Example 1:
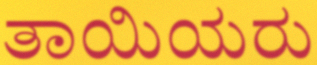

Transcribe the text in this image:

ತಾಯಿಯರು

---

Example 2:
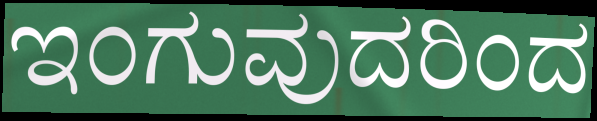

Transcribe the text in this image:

ಇಂಗುವುದರಿಂದ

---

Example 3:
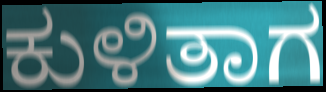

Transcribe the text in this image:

ಕುಳಿತಾಗ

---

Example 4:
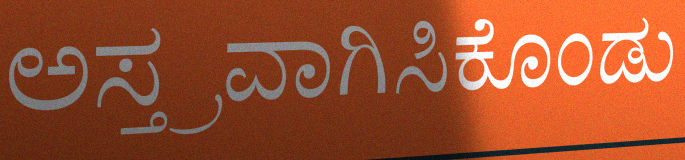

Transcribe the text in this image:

ಅಸ್ತ್ರವಾಗಿಸಿಕೊಂಡು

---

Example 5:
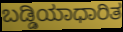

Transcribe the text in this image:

ಬಡ್ಡಿಯಾಧಾರಿತ